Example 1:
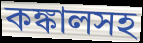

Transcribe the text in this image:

কঙ্কালসহ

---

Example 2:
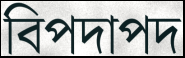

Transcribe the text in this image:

বিপদাপদ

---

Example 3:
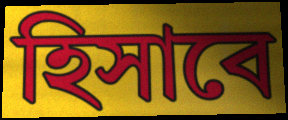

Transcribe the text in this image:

হিসাবে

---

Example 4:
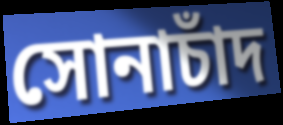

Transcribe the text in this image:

সোনাচাঁদ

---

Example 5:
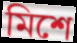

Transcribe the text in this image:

মিশে